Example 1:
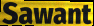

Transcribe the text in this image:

Sawant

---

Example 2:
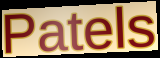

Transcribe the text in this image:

Patels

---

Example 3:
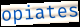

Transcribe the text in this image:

opiates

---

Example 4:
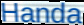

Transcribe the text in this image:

Handa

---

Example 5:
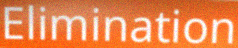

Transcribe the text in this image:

Elimination